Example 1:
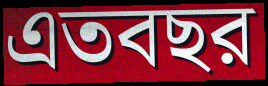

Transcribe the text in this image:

এতবছর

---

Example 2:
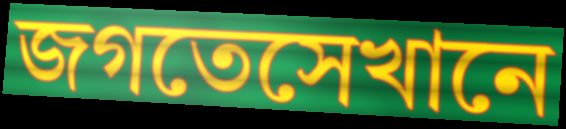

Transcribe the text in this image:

জগতেসেখানে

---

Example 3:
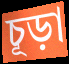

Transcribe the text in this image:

চূড়া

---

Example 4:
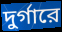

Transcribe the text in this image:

দুর্গারে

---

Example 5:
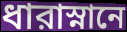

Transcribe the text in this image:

ধারাস্নানে